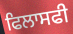
ਫਿਲਾਸਫੀ